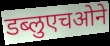
डब्लुएचओने